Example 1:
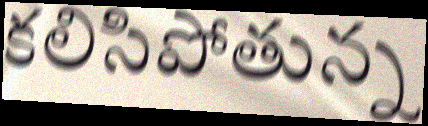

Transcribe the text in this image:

కలిసిపోతున్న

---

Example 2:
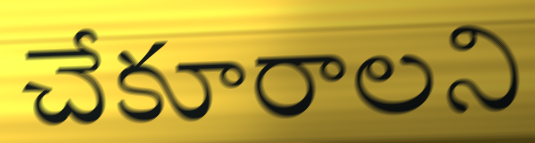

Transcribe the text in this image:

చేకూరాలని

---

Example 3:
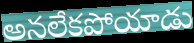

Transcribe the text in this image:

అనలేకపోయాడు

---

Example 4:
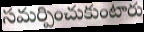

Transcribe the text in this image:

సమర్పించుకుంటారు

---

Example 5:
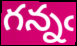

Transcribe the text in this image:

గన్నఁ